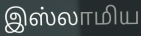
இஸ்லாமிய